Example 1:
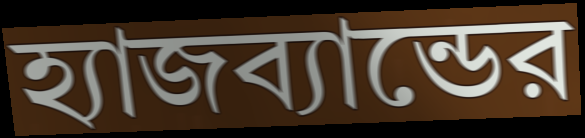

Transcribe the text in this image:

হ্যাজব্যান্ডের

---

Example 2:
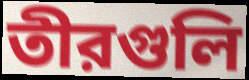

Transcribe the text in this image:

তীরগুলি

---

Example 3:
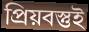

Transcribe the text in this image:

প্রিয়বস্তুই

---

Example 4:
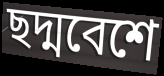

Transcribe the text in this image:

ছদ্মবেশে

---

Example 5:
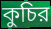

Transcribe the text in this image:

কুচির